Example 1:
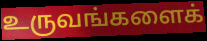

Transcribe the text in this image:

உருவங்களைக்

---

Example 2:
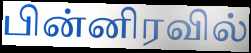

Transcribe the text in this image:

பின்னிரவில்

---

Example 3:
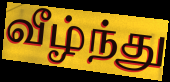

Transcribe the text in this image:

வீழ்ந்து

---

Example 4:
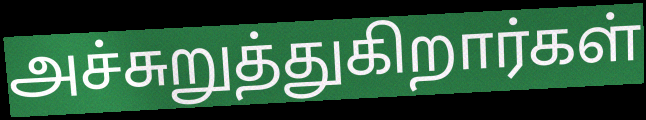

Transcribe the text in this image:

அச்சுறுத்துகிறார்கள்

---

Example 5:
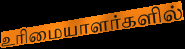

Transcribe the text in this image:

உரிமையாளர்களில்